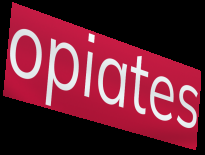
opiates